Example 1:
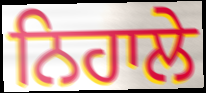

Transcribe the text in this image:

ਨਿਹਾਲੇ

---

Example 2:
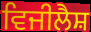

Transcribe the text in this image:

ਵਿਜੀਲੈਸ਼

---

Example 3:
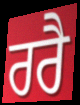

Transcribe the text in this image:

ਰਰੈ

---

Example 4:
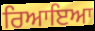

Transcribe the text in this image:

ਰਿਆਇਆ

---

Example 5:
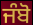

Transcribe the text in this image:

ਜੰਬੋ